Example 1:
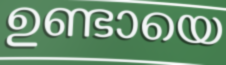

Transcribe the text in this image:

ഉണ്ടായെ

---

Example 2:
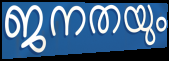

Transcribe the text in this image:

ജനതയും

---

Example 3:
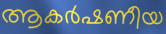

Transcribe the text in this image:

ആകർഷണീയ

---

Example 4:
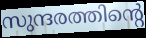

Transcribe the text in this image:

സുന്ദരത്തിന്റെ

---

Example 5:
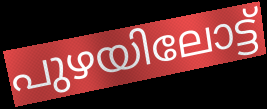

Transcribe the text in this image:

പുഴയിലോട്ട്